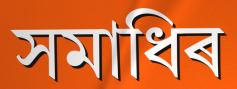
সমাধিৰ